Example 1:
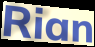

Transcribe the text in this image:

Rian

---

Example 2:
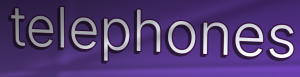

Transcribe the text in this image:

telephones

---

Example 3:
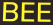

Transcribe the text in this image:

BEE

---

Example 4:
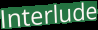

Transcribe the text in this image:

Interlude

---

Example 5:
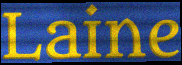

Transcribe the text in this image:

Laine